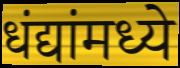
धंद्यांमध्ये